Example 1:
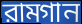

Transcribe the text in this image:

রামগান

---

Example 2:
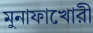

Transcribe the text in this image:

মুনাফাখোরী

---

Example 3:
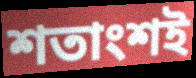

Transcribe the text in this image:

শতাংশই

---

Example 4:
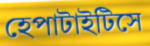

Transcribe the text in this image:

হেপাটাইটিসে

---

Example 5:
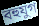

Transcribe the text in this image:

বহুযুগ